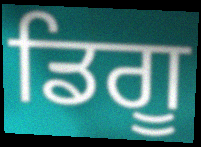
ਡਿਗੂ